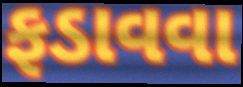
ફડાવવા